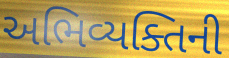
અભિવ્યક્તિની